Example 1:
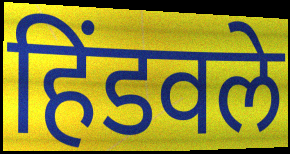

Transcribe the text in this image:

हिंडवले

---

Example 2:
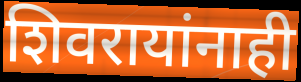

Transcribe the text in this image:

शिवरायांनाही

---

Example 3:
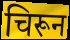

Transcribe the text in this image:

चिरून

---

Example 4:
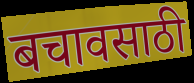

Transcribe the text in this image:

बचावसाठी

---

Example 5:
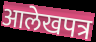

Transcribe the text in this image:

आलेखपत्र